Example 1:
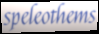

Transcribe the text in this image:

speleothems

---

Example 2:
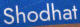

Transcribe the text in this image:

Shodhat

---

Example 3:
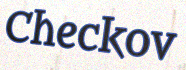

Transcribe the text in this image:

Checkov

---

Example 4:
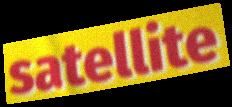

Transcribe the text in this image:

satellite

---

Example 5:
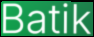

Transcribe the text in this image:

Batik